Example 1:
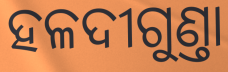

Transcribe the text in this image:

ହଳଦୀଗୁଣ୍ତା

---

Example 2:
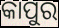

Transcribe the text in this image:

କାପୁର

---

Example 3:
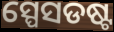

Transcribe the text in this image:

ସ୍ପେସଡଷ୍ଟ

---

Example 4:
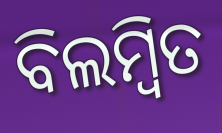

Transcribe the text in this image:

ବିଲମ୍ବିତ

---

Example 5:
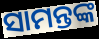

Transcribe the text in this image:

ସାମନ୍ତଙ୍କ